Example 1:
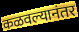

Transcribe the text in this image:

कळवल्यानंतर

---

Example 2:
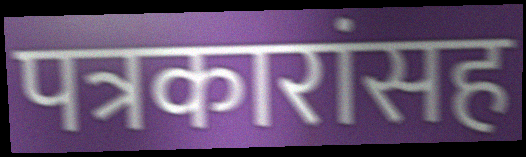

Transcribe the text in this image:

पत्रकारांसह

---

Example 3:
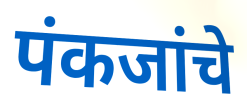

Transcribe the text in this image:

पंकजांचे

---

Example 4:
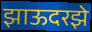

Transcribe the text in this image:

झाऊदरझे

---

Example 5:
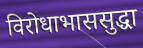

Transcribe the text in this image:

विरोधाभाससुद्धा